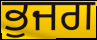
ਭੁਜਗ